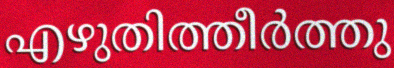
എഴുതിത്തീർത്തു